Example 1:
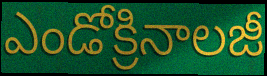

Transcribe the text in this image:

ఎండోక్రినాలజీ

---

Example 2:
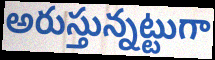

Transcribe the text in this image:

అరుస్తున్నట్టుగా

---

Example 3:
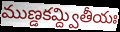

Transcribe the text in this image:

ముణ్డకమ్ద్వితీయః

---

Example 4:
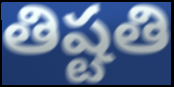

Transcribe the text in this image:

తిష్టతి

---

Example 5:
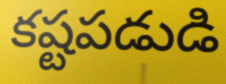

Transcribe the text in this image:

కష్టపడుడి